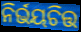
ନିର୍ଭୟଚିତ୍ତ